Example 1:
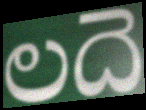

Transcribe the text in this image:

లదె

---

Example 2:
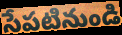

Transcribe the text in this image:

సేపటినుండి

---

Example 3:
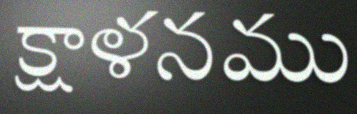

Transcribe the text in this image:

క్షాళనము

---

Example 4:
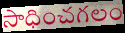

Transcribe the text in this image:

సాధించగలం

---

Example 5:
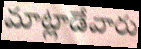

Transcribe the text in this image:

మాట్లాడేవారు